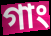
গাং